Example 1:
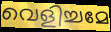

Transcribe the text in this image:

വെളിച്ചമേ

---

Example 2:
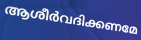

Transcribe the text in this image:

ആശീർവദിക്കണമേ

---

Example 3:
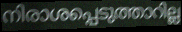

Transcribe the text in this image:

നിരാശപ്പെടുത്താറില്ല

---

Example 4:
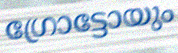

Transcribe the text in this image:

ഗ്രോട്ടോയും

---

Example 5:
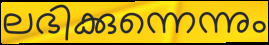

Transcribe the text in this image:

ലഭിക്കുന്നെന്നും